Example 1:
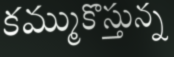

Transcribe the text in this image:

కమ్ముకొస్తున్న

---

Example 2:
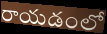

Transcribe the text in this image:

రాయడంలో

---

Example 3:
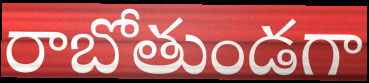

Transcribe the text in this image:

రాబోతుండగా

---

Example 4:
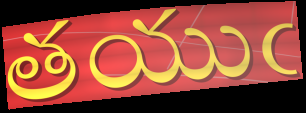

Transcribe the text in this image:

తయుఁ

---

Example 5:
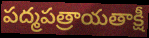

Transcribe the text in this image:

పద్మపత్రాయతాక్షీ